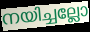
നയിച്ചല്ലോ